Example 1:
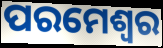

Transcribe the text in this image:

ପରମେଶ୍ୱର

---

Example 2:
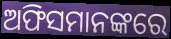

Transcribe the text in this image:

ଅଫିସମାନଙ୍କରେ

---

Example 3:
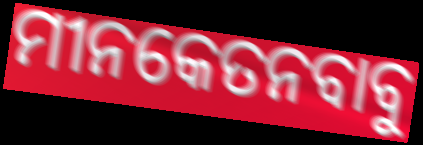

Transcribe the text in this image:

ମୀନକେତନବାବୁ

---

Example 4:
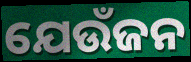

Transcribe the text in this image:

ଯେଉଁଜନ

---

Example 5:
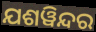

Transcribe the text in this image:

ଯଶୱିନ୍ଦର